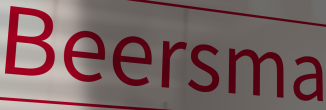
Beersma